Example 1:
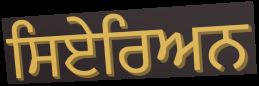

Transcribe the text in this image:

ਸਿਏਰਿਅਨ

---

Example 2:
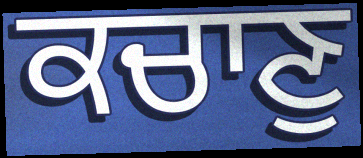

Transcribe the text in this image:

ਕਚਾਣੁ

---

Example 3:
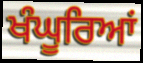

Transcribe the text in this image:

ਖੰਘੂਰਿਆਂ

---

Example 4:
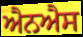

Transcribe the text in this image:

ਐਨਐਸ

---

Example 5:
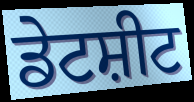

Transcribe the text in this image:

ਡੇਟਸ਼ੀਟ